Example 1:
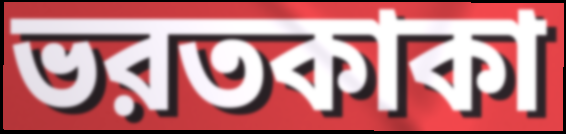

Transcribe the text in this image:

ভরতকাকা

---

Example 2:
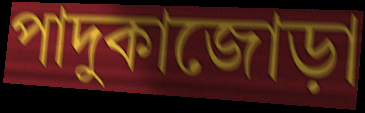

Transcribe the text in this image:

পাদুকাজোড়া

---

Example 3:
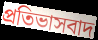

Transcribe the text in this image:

প্রতিভাসবাদ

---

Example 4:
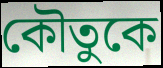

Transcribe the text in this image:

কৌতুকে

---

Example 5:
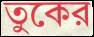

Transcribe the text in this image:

তুকের